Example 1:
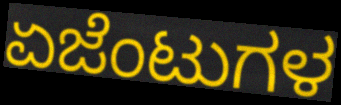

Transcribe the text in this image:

ಏಜೆಂಟುಗಳ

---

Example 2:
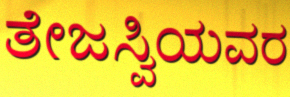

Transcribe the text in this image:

ತೇಜಸ್ವಿಯವರ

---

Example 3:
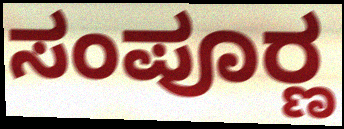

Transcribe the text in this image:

ಸಂಪೂರ್‍ಣ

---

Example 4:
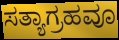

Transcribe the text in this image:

ಸತ್ಯಾಗ್ರಹವೂ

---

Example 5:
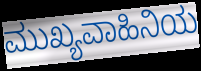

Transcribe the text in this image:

ಮುಖ್ಯವಾಹಿನಿಯ